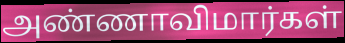
அண்ணாவிமார்கள்